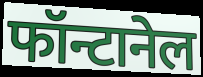
फॉन्टानेल